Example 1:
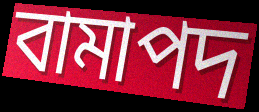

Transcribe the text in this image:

বামাপদ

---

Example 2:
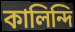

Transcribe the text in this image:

কালিন্দি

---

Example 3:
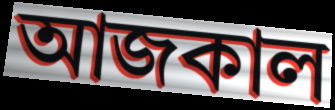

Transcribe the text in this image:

আজকাল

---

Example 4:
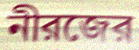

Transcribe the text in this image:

নীরজের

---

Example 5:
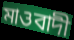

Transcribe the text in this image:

মাওবাদী